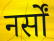
नर्सों